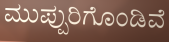
ಮುಪ್ಪುರಿಗೊಂಡಿವೆ